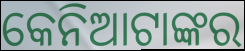
କେନିଆଟାଙ୍କର